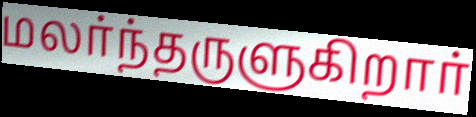
மலர்ந்தருளுகிறார்